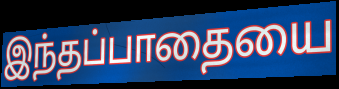
இந்தப்பாதையை